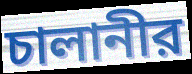
চালানীর